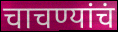
चाचण्यांचं